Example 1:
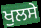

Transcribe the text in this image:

ਖੁਲਸੇ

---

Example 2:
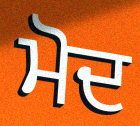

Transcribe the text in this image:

ਮੋਦ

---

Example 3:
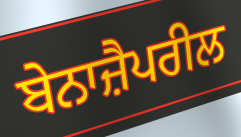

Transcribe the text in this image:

ਬੇਨਾਜ਼ੈਪਰੀਲ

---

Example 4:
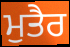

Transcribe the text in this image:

ਮੁਤੈਰ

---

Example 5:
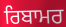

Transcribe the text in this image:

ਰਿਬਾਮਰ